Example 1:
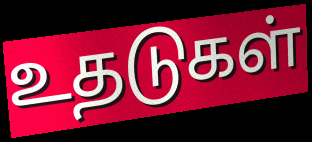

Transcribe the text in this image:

உதடுகள்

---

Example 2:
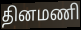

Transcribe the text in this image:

தினமணி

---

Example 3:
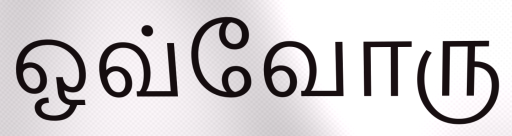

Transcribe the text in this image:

ஒவ்வோரு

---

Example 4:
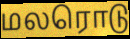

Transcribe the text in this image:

மலரொடு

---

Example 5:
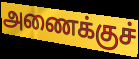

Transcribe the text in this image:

அணைக்குச்